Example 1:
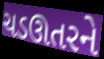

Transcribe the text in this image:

ચડઊતરને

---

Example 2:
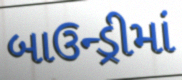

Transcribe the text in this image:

બાઉન્ડ્રીમાં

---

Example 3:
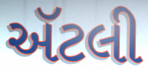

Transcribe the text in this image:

ઍટલી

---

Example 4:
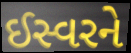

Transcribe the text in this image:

ઈસ્વરને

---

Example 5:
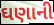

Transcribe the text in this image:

ઘણાની